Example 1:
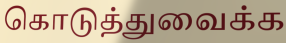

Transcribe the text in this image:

கொடுத்துவைக்க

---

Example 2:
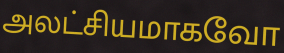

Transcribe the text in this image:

அலட்சியமாகவோ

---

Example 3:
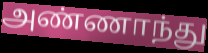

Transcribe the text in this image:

அண்ணாந்து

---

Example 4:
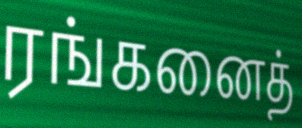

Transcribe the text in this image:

ரங்கனைத்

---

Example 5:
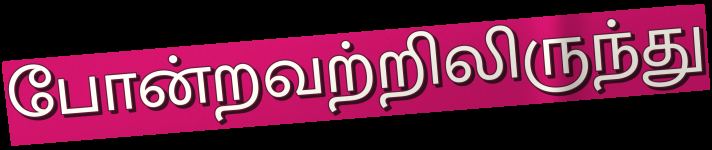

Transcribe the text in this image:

போன்றவற்றிலிருந்து